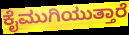
ಕೈಮುಗಿಯುತ್ತಾರೆ